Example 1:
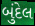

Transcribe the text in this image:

બુંદેલ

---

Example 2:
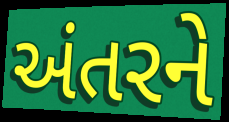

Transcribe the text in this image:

અંતરને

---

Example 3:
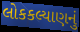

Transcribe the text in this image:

લોકકલ્યાણનું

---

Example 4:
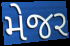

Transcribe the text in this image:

મેજર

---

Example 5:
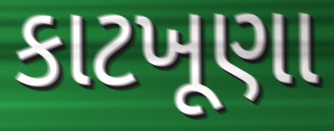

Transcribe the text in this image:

કાટખૂણા